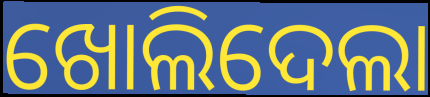
ଖୋଲିଦେଲା